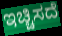
ಇಚ್ಚಿಸದೆ